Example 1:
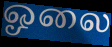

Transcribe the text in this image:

ஓலை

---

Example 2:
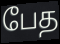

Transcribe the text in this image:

பேத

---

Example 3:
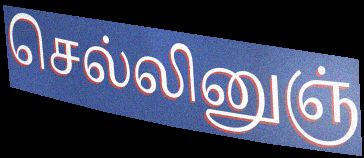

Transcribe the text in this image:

செல்லினுஞ்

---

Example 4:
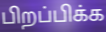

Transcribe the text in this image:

பிறப்பிக்க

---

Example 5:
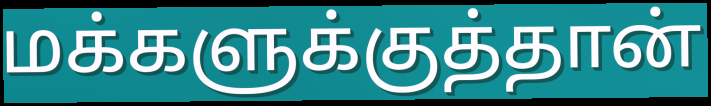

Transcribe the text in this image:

மக்களுக்குத்தான்